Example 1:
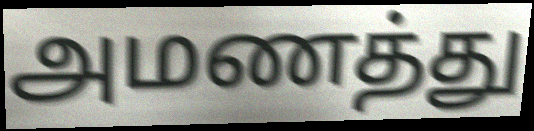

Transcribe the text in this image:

அமணத்து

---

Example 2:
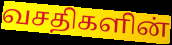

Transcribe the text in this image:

வசதிகளின்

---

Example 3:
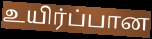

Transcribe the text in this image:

உயிர்ப்பான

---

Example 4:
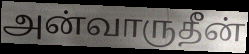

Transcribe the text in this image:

அன்வாருதீன்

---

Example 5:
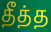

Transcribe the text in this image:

தீத்த